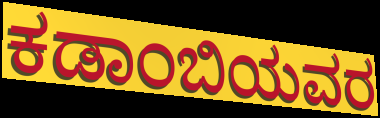
ಕಡಾಂಬಿಯವರ